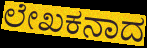
ಲೇಖಕನಾದ